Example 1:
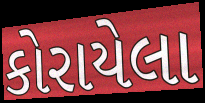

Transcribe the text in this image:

કોરાયેલા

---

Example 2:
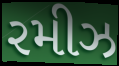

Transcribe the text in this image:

રમીઝ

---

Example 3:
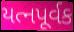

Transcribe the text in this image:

યત્નપૂર્વક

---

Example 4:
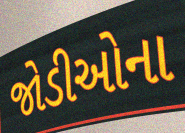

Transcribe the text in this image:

જોડીઓના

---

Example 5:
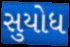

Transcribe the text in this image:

સુયોધ